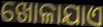
ଖୋଳାଯାଏ